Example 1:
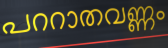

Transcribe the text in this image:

പററാതവണ്ണം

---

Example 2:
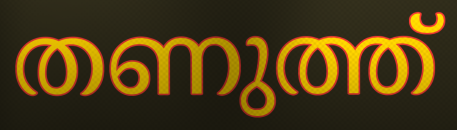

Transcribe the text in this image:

തണുത്ത്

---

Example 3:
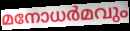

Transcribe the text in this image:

മനോധർമവും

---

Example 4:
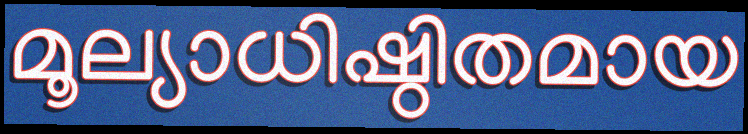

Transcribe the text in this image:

മൂല്യാധിഷ്ഠിതമായ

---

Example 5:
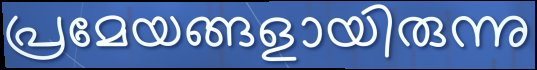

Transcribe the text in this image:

പ്രമേയങ്ങളായിരുന്നു